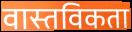
वास्तविकता